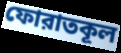
ফোরাতকূল